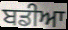
ਬਡੀਆ